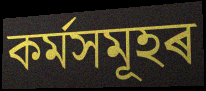
কৰ্মসমূহৰ